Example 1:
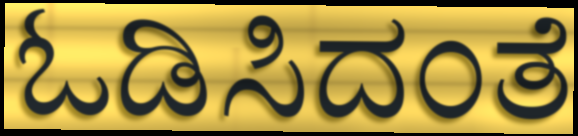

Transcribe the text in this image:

ಓಡಿಸಿದಂತೆ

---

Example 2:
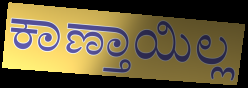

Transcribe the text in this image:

ಕಾಣ್ತಾಯಿಲ್ಲ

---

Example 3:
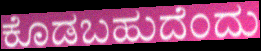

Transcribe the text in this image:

ಕೊಡಬಹುದೆಂದು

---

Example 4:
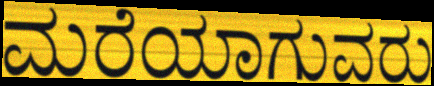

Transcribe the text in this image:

ಮರೆಯಾಗುವರು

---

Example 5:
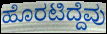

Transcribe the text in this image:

ಹೊರಟಿದ್ದೆವು